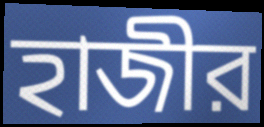
হাজীর